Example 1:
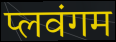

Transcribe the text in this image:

प्लवंगम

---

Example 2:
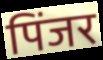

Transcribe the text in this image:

पिंजर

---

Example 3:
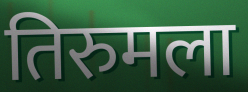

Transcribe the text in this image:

तिरुमला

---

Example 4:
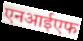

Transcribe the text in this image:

एनआईएफ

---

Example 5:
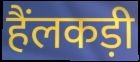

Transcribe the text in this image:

हैंलकड़ी